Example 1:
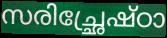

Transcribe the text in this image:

സരിച്ഛ്രേഷ്ഠാ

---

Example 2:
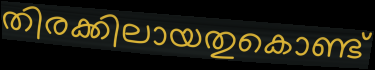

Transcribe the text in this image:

തിരക്കിലായതുകൊണ്ട്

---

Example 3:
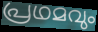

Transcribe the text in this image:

പ്രഥമവും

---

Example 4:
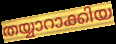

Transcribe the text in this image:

തയ്യാറാക്കിയ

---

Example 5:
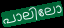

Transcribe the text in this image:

പാലിലോ